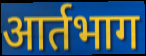
आर्तभाग